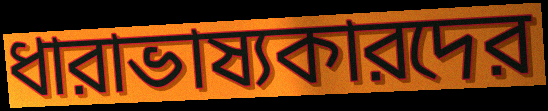
ধারাভাষ্যকারদের